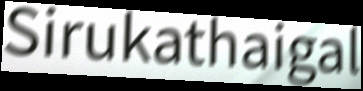
Sirukathaigal